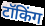
टॉकिंग